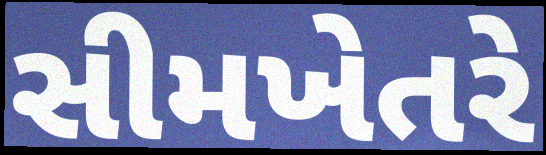
સીમખેતરે